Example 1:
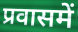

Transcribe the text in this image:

प्रवासमें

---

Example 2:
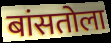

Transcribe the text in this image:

बांसतोला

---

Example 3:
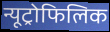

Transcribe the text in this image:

न्यूट्रोफिलिक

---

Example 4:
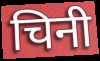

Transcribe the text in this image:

चिनी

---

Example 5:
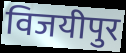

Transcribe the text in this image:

विजयीपुर